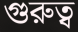
গুরুত্ব